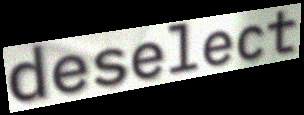
deselect